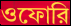
ওফোরি